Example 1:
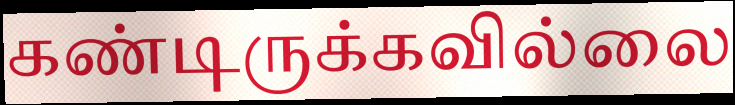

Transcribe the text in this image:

கண்டிருக்கவில்லை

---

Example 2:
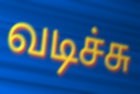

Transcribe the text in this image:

வடிச்சு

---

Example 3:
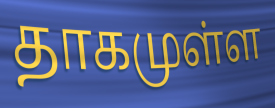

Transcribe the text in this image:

தாகமுள்ள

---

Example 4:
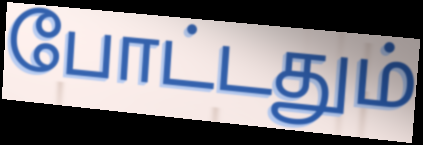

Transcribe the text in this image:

போட்டதும்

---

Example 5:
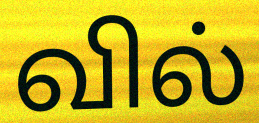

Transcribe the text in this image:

வில்